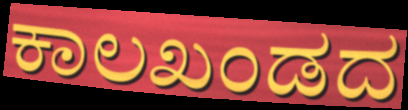
ಕಾಲಖಂಡದ